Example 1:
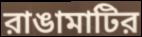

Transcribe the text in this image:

রাঙামাটির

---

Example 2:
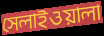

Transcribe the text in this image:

সেলাইওয়ালা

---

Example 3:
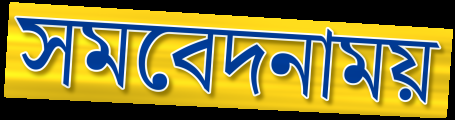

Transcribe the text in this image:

সমবেদনাময়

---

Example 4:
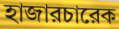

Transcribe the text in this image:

হাজারচারেক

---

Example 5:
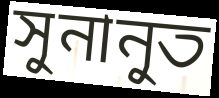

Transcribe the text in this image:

সুনানুত